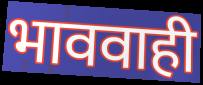
भाववाही